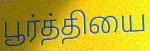
பூர்த்தியை